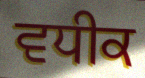
ਵਧੀਕ